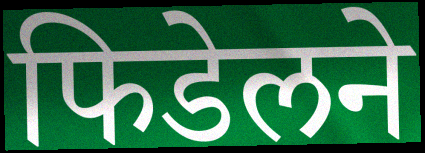
फिडेलने